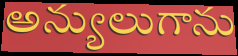
అన్యులుగాను